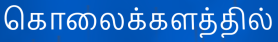
கொலைக்களத்தில்